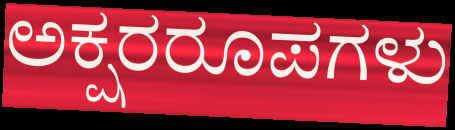
ಅಕ್ಷರರೂಪಗಳು